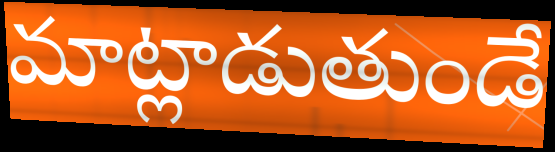
మాట్లాడుతుండే